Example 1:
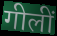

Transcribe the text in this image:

गीलीं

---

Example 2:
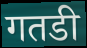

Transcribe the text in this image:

गतडी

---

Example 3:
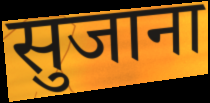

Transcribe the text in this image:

सुजाना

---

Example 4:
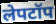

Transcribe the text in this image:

लेपटॉप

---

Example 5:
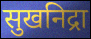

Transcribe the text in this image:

सुखनिद्रा